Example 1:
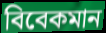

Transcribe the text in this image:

বিবেকমান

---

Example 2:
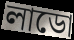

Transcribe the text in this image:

লাডো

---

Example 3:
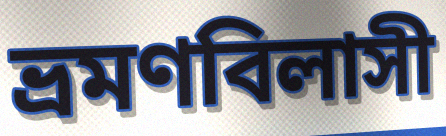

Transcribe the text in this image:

ভ্রমণবিলাসী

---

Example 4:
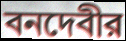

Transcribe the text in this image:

বনদেবীর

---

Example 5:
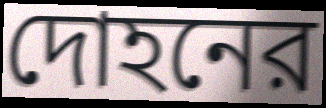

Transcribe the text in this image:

দোহনের